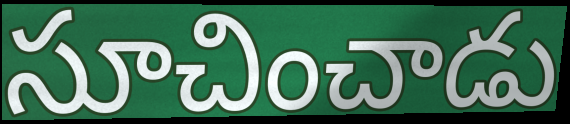
సూచించాడు